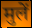
मुलें